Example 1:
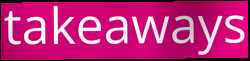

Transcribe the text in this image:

takeaways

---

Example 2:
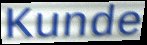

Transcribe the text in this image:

Kunde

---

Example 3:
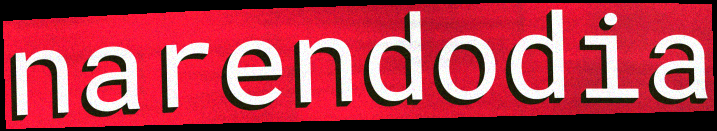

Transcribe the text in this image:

narendodia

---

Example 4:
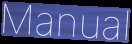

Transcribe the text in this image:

Manual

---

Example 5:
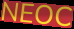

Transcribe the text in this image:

NEOC